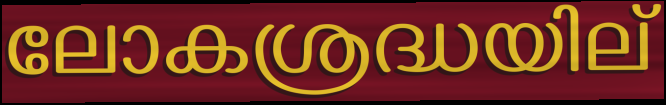
ലോകശ്രദ്ധയില്